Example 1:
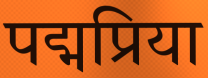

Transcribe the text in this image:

पद्मप्रिया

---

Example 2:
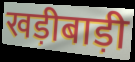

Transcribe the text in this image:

खड़ीबाड़ी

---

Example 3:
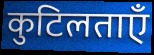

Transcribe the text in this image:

कुटिलताएँ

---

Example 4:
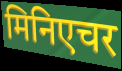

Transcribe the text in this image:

मिनिएचर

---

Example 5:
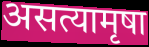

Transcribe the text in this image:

असत्यामृषा